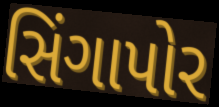
સિંગાપોર